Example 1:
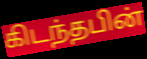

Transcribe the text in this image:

கிடந்தபின்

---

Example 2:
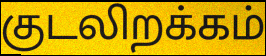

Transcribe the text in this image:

குடலிறக்கம்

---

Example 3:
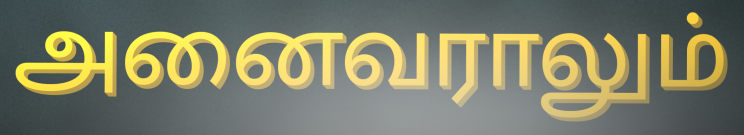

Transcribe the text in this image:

அனைவராலும்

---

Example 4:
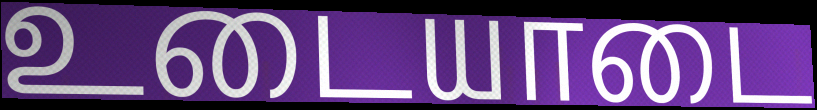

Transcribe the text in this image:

உடையாடை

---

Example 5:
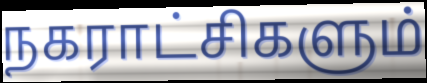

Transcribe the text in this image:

நகராட்சிகளும்